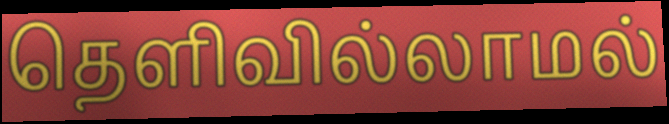
தெளிவில்லாமல்